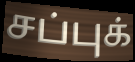
சப்புக்